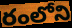
రంలోని